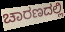
ಚಾರಣದಲ್ಲಿ